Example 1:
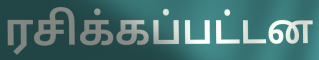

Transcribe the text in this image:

ரசிக்கப்பட்டன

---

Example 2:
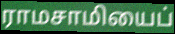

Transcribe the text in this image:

ராமசாமியைப்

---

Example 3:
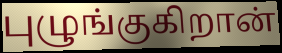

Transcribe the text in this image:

புழுங்குகிறான்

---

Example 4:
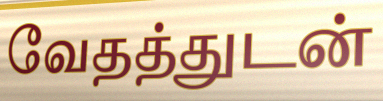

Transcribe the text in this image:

வேதத்துடன்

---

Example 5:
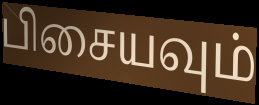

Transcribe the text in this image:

பிசையவும்